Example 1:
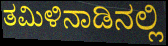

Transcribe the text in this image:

ತಮಿಳಿನಾಡಿನಲ್ಲಿ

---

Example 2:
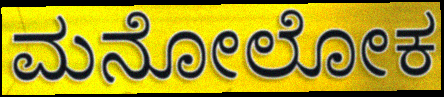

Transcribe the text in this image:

ಮನೋಲೋಕ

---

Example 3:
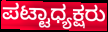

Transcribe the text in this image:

ಪಟ್ಟಾಧ್ಯಕ್ಷರು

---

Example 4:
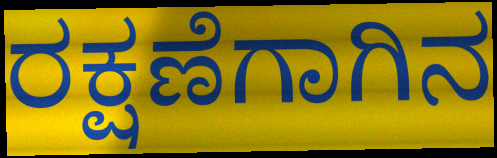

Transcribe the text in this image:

ರಕ್ಷಣೆಗಾಗಿನ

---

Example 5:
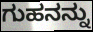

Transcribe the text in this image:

ಗುಹನನ್ನು